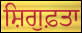
ਸ਼ਿਗੁਫ਼ਤਾ